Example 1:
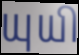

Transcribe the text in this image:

யுயி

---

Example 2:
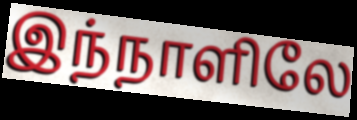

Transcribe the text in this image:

இந்நாளிலே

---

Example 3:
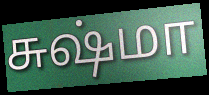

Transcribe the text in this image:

சுஷ்மா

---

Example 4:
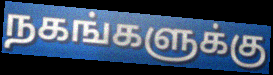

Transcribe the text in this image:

நகங்களுக்கு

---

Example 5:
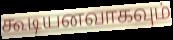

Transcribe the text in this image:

கூடியனவாகவும்